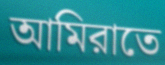
আমিরাতে